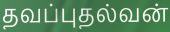
தவப்புதல்வன்